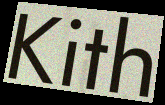
Kith